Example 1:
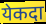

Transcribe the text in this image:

येकदा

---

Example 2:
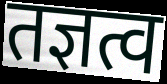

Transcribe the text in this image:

तज्ञत्व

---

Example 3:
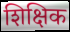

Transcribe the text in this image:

शिक्षिक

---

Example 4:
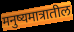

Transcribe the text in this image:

मनुष्यमात्रातील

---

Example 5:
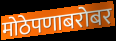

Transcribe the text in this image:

मोठेपणाबरोबर